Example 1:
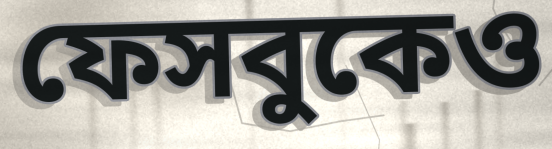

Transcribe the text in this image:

ফেসবুকেও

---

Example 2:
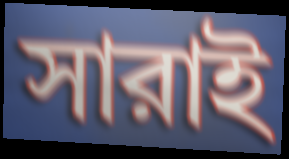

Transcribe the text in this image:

সারাই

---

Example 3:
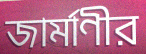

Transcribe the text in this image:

জার্মাণীর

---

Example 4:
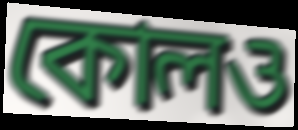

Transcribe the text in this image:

কোলও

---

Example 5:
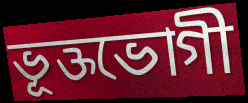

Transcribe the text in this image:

ভূক্তভোগী